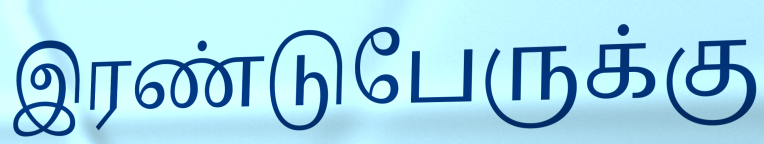
இரண்டுபேருக்கு